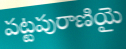
పట్టపురాణియై